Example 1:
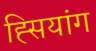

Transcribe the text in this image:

ह्सियांग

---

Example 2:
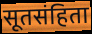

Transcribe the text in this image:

सूतसंहिता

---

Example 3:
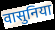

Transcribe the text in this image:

वासुनिया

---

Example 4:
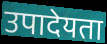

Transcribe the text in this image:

उपादेयता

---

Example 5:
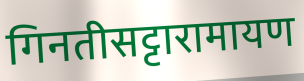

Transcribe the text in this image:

गिनतीसट्टारामायण